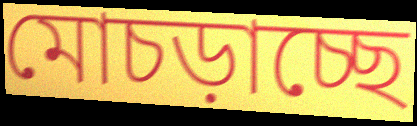
মোচড়াচ্ছে